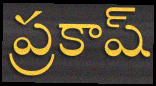
ప్రకాష్